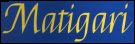
Matigari